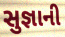
સુજ્ઞાની